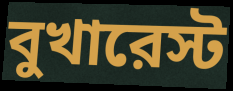
বুখারেস্ট